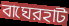
বাঘেরহাট